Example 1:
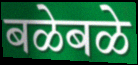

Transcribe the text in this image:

बळेबळे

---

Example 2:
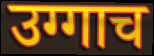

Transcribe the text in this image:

उग्गाच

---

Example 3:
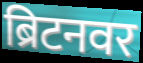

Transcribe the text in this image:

ब्रिटनवर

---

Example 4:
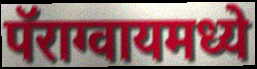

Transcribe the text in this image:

पॅराग्वायमध्ये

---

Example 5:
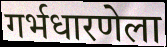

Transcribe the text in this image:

गर्भधारणेला